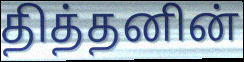
தித்தனின்